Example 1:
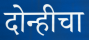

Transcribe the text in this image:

दोन्हीचा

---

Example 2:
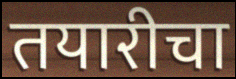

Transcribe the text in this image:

तयारीचा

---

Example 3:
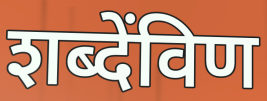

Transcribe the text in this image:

शब्देंविण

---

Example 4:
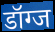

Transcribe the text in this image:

डॉग्ज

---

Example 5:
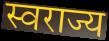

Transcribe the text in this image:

स्वराज्य